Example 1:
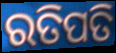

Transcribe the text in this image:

ରତିପତି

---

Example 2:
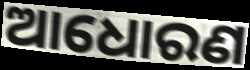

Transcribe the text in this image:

ଆଧୋରଣ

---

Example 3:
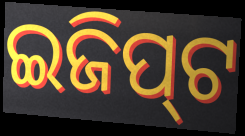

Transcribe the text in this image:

ଇଜିପ୍‌ଟ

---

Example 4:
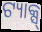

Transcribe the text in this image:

ଟ୍ୟାକ୍ସ୍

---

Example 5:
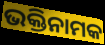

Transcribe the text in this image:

ଭକ୍ତିନାମକ